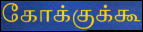
கோக்குக்கூ